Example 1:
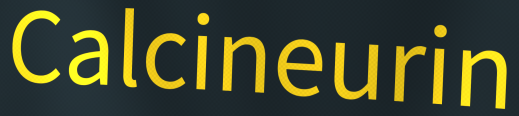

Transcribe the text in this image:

Calcineurin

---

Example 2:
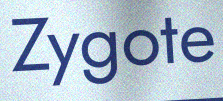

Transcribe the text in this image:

Zygote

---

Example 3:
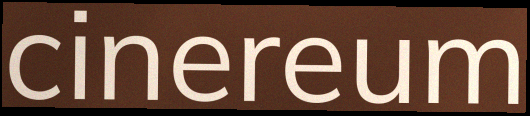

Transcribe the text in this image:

cinereum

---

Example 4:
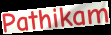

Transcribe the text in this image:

Pathikam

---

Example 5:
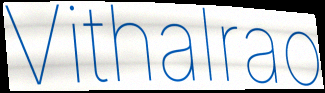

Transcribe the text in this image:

Vithalrao